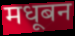
मधूबन